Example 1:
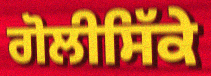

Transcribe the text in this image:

ਗੋਲੀਸਿੱਕੇ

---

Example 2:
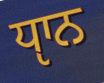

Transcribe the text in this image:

ਧੵਾਨ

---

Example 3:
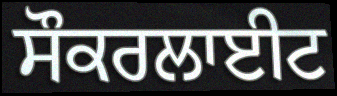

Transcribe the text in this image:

ਸੌਕਰਲਾਈਟ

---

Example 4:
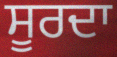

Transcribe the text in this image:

ਸੂਰਦਾ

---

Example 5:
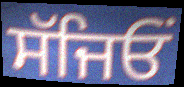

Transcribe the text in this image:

ਸੱਜਿਓਂ